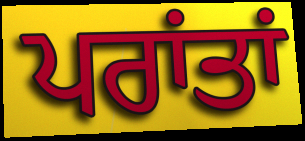
ਪਰਾਂਤਾਂ